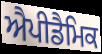
ਐਪੀਡੈਮਿਕ